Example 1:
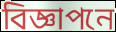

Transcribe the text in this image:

বিজ্ঞাপনে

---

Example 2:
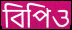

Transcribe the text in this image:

বিপিও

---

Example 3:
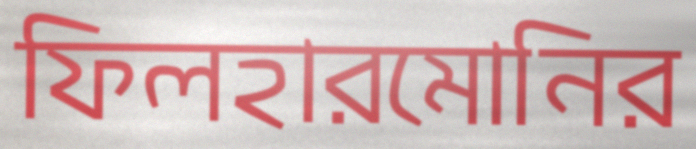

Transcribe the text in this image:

ফিলহারমোনির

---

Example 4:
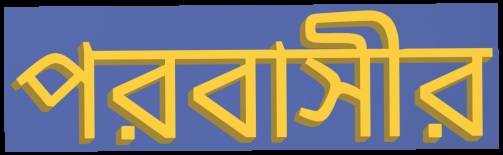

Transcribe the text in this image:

পরবাসীর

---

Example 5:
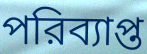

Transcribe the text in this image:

পরিব্যাপ্ত